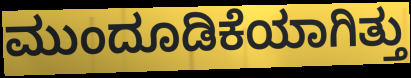
ಮುಂದೂಡಿಕೆಯಾಗಿತ್ತು